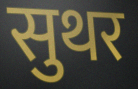
सुथर